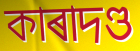
কাৰাদণ্ড